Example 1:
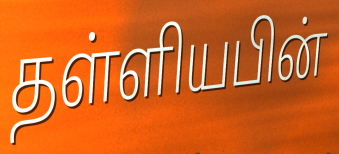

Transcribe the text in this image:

தள்ளியபின்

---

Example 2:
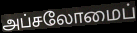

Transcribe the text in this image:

அப்சலோமைப்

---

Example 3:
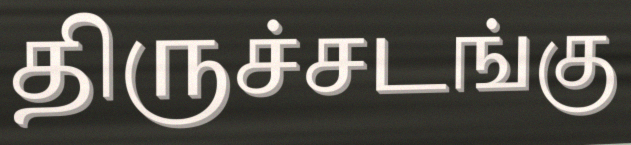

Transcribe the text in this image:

திருச்சடங்கு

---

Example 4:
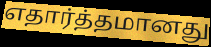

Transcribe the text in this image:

எதார்த்தமானது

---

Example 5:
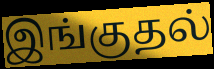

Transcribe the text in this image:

இங்குதல்